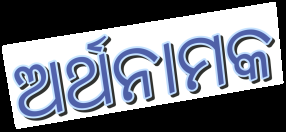
ଅର୍ଥନାମକ